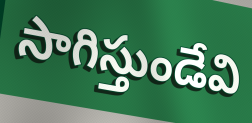
సాగిస్తుండేవి